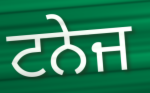
ਟਨੇਜ